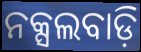
ନକ୍ସଲବାଡ଼ି